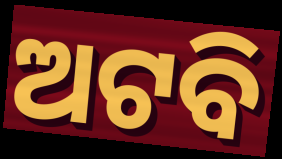
ଅଟବି